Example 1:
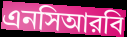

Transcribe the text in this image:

এনসিআরবি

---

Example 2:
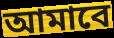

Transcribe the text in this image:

আমাবে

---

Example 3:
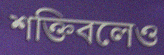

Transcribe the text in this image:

শক্তিবলেও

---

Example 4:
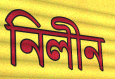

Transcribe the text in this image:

নিলীন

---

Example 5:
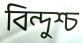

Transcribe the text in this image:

বিন্দুশ্চ